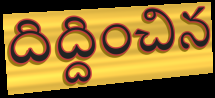
దిద్దించిన